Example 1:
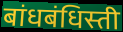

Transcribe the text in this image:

बांधबंधिस्ती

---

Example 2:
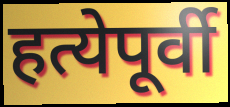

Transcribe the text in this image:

हत्येपूर्वी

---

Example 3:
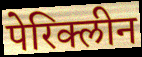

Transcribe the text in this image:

पेरिक्लीन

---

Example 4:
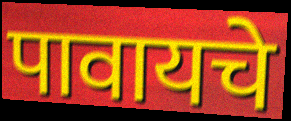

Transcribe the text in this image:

पावायचे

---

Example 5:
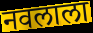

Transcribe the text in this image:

नवलाला